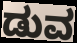
ಡುವ